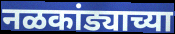
नळकांड्याच्या